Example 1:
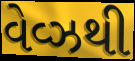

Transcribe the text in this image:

વેવ્ઝથી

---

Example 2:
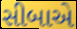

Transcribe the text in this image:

સીબાએ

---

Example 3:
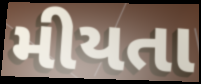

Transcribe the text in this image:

મીયતા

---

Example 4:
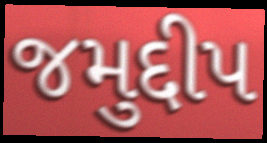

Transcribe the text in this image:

જમુદ્દીપ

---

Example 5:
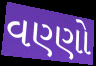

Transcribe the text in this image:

વણ્ણો